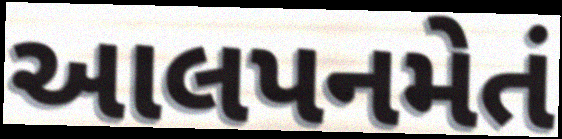
આલપનમેતં